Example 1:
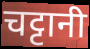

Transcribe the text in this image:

चट्टानी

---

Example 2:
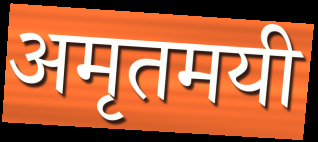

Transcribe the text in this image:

अमृतमयी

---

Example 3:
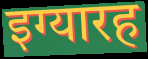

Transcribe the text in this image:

इग्यारह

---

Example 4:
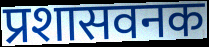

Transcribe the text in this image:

प्रशासवनक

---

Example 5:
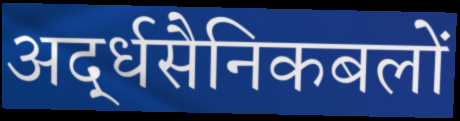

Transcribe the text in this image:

अर्द्धसैनिकबलों